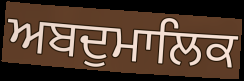
ਅਬਦੁਮਾਲਿਕ